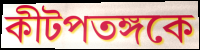
কীটপতঙ্গকে